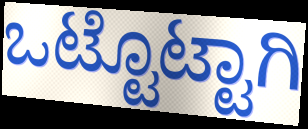
ಒಟ್ಟೊಟ್ಟಾಗಿ